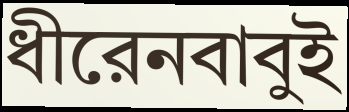
ধীরেনবাবুই